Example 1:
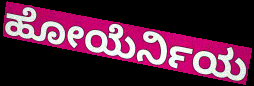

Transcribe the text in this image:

ಹೋಯೆರ್ನಿಯ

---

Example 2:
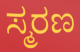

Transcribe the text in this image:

ಸ್ಮರಣ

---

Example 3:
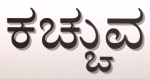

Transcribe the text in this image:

ಕಚ್ಚುವ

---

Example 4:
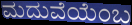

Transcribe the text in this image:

ಮದುವೆಯೆಂಬ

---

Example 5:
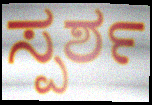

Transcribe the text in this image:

ಸ್ಪರ್ಶ